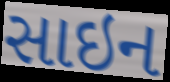
સાઇન